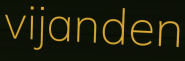
vijanden